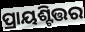
ପ୍ରାୟଶ୍ଟିତ୍ତର